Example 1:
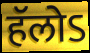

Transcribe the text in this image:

हॅलोऽ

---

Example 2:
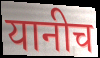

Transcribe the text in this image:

यानीच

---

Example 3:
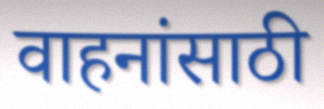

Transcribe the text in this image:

वाहनांसाठी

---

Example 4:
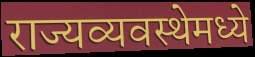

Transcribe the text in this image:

राज्यव्यवस्थेमध्ये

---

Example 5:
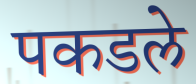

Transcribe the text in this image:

पकडले